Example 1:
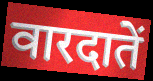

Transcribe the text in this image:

वारदातें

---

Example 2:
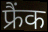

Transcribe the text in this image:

फ्रैंक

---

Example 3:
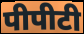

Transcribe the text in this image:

पीपीटी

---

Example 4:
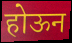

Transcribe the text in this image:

होऊन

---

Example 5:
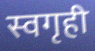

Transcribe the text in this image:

स्वगृही